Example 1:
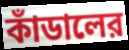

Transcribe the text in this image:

কাঁডালের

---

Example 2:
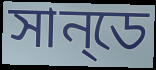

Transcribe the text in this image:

সান্‌ডে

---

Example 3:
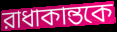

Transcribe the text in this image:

রাধাকান্তকে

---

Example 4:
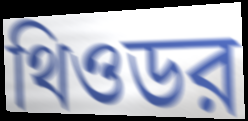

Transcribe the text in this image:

থিওডর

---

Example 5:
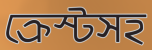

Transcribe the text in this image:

ক্রেস্টসহ